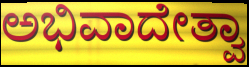
ಅಭಿವಾದೇತ್ವಾ